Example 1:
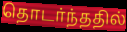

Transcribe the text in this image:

தொடர்ந்ததில்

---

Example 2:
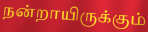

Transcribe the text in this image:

நன்றாயிருக்கும்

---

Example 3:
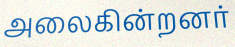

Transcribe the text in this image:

அலைகின்றனர்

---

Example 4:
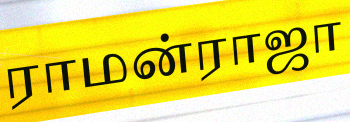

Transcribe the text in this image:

ராமன்ராஜா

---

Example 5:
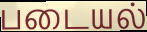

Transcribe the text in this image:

படையல்